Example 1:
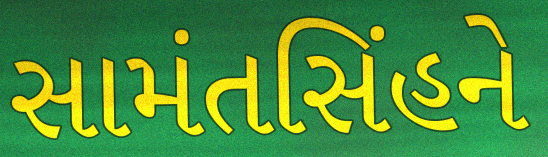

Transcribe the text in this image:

સામંતસિંહને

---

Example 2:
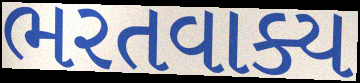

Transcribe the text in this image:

ભરતવાક્ય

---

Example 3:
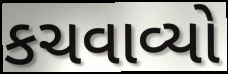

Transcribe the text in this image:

કચવાવ્યો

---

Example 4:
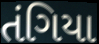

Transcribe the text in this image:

તંગિયા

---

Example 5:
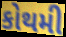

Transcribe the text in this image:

કોથમી